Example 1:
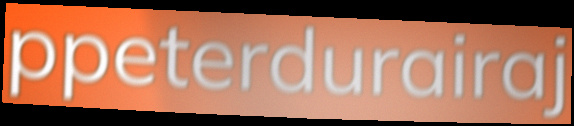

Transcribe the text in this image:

ppeterdurairaj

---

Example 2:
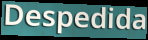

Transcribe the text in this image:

Despedida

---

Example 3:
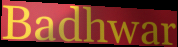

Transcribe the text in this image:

Badhwar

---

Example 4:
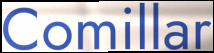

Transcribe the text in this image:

Comillar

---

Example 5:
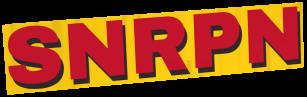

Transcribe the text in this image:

SNRPN